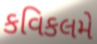
કવિકલમે